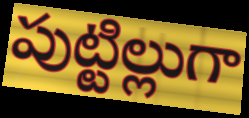
పుట్టిల్లుగా